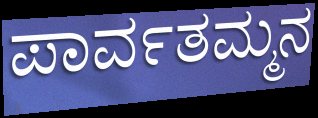
ಪಾರ್ವತಮ್ಮನ